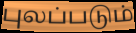
புலப்படும்